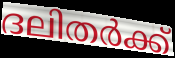
ദലിതർക്ക്